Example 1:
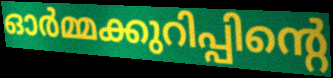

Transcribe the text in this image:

ഓർമ്മക്കുറിപ്പിന്റെ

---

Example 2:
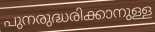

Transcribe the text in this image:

പുനരുദ്ധരിക്കാനുള്ള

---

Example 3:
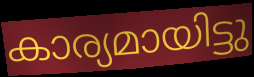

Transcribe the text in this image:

കാര്യമായിട്ടു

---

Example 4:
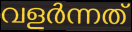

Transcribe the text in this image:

വളർന്നത്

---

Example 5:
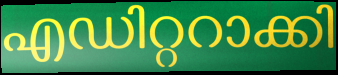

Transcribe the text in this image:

എഡിറ്ററാക്കി